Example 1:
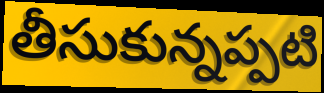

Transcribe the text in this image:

తీసుకున్నప్పటి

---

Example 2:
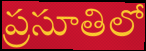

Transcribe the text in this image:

ప్రసూతిలో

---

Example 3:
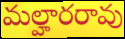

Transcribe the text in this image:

మల్హారరావు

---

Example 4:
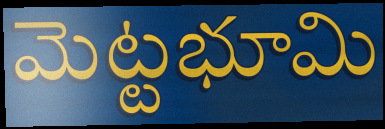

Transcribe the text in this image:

మెట్టభూమి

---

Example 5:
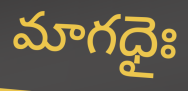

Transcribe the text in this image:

మాగధైః